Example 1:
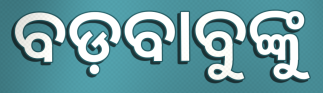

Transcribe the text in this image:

ବଡ଼ବାବୁଙ୍କୁ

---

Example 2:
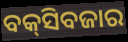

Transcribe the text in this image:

ବକ୍‍ସିବଜାର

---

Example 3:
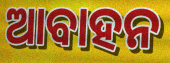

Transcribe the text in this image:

ଆବାହନ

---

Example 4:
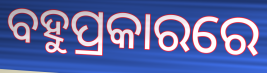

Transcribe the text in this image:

ବହୁପ୍ରକାରରେ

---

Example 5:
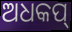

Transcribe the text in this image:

ଅଧକପ୍